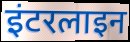
इंटरलाइन